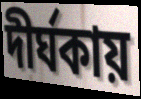
দীর্ঘকায়